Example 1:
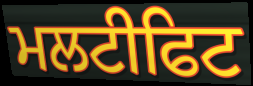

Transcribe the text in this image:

ਮਲਟੀਫਿਟ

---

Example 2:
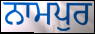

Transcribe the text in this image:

ਨਾਮਪੁਰ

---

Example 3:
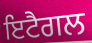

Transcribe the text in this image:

ਇਟੈਗਲ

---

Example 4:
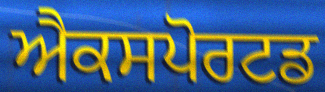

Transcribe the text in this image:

ਐਕਸਪੋਰਟਡ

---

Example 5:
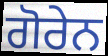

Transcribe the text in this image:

ਗੋਰੇਨ